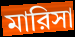
মারিসা